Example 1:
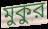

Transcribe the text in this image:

মুকুর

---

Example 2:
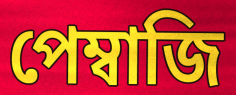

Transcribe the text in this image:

পেম্বাজি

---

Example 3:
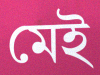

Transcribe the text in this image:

মেই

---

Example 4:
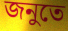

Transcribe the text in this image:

জনুতে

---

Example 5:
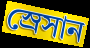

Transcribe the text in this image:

স্রেসান